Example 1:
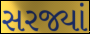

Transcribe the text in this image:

સરજ્યાં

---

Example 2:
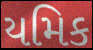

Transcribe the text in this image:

યમિક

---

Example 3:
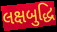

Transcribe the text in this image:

લક્ષબુદ્ધિ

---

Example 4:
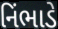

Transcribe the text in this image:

નિંભાડે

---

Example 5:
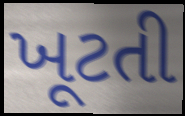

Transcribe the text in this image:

ખૂટતી